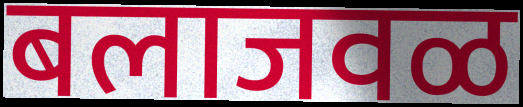
बलाजवळ